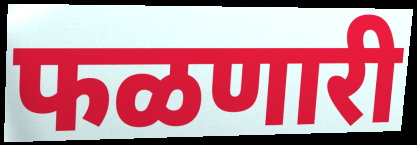
फळणारी